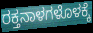
ರಕ್ತನಾಳಗಳೊಳಕ್ಕೆ